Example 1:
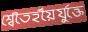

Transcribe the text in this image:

শ্বেতৈর্হয়ৈর্যুক্তে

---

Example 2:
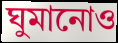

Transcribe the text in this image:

ঘুমানোও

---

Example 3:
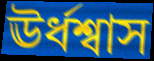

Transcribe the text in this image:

ঊর্ধশ্বাস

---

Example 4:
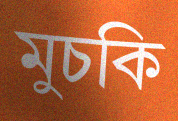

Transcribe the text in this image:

মুচকি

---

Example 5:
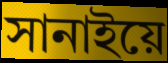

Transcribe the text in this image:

সানাইয়ে